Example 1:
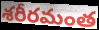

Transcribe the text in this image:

శరీరమంత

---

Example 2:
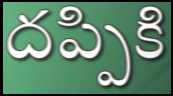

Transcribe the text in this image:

దప్పికి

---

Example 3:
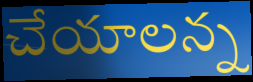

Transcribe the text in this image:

చేయాలన్న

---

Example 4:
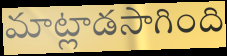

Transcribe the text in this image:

మాట్లాడసాగింది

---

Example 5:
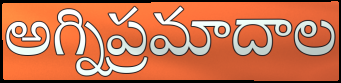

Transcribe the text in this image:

అగ్నిప్రమాదాల